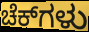
ಚೆಕ್‌ಗಳು